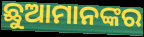
ଛୁଆମାନଙ୍କର